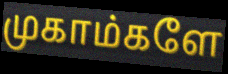
முகாம்களே